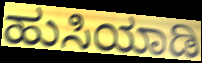
ಹುಸಿಯಾಡಿ